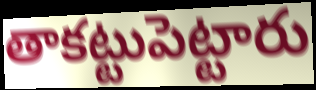
తాకట్టుపెట్టారు